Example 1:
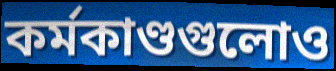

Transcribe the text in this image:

কর্মকাণ্ডগুলোও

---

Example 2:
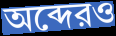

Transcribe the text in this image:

অব্দেরও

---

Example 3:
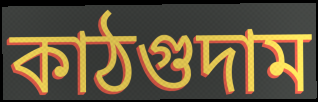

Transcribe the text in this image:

কাঠগুদাম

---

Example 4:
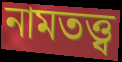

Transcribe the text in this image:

নামতত্ত্ব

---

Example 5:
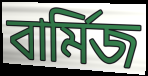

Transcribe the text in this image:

বার্মিজ